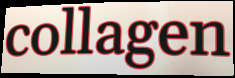
collagen